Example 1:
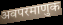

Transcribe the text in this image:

अवपरमाणुक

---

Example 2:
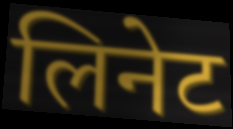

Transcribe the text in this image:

लिनेट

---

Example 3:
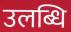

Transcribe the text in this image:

उलब्धि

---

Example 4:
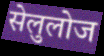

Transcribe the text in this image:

सेलुलोज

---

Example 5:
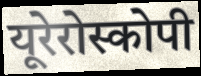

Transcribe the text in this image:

यूरेरोस्कोपी